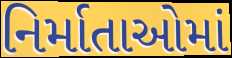
નિર્માતાઓમાં